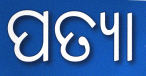
ପତ୍ୟା